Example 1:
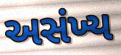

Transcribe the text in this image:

અસંખ્ય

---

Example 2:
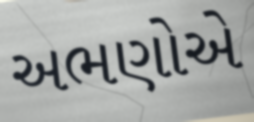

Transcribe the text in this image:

અભણોએ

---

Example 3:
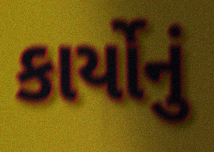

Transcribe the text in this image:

કાર્યોનું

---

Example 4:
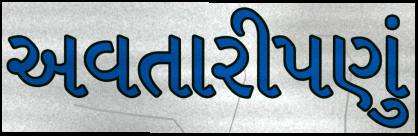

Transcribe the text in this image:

અવતારીપણું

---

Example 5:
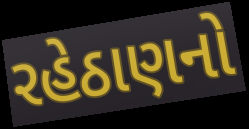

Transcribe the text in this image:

રહેઠાણનો